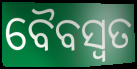
ବୈବସ୍ଵତ